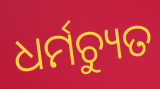
ଧର୍ମଚ୍ୟୁତ